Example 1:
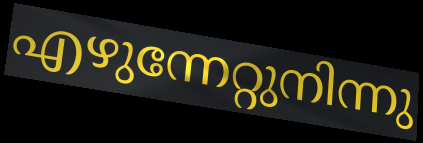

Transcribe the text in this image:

എഴുന്നേറ്റുനിന്നു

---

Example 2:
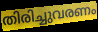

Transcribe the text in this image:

തിരിച്ചുവരണം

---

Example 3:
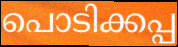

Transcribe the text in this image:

പൊടിക്കപ്പ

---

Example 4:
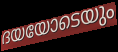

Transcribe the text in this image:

ദയയോടെയും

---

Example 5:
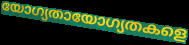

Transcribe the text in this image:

യോഗ്യതായോഗ്യതകളെ